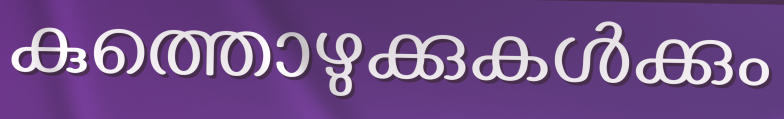
കുത്തൊഴുക്കുകൾക്കും